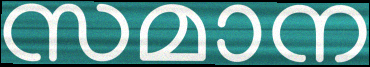
സമാന